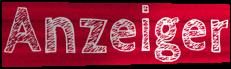
Anzeiger